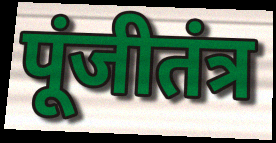
पूंजीतंत्र